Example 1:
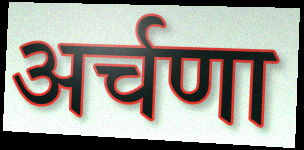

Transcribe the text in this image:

अर्चणा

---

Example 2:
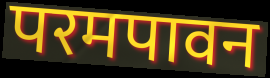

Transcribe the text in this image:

परमपावन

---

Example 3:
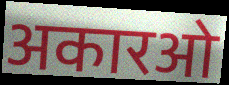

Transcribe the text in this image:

अकारओ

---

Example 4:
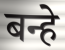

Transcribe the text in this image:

बन्हे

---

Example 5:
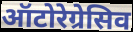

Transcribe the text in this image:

ऑटोरेग्रेसिव